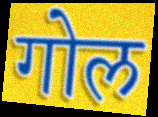
गोल